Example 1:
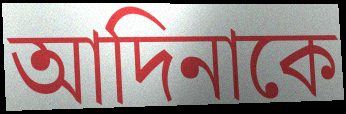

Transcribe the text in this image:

আদিনাকে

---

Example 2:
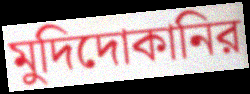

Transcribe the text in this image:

মুদিদোকানির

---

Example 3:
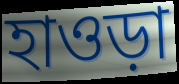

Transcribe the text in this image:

হাওড়া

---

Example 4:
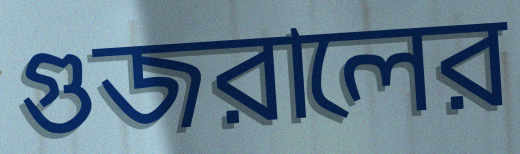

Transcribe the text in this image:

গুজরালের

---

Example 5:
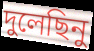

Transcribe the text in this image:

দুলেছিনু